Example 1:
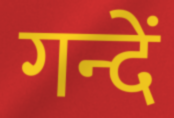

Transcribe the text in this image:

गन्दें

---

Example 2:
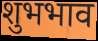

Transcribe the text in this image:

शुभभाव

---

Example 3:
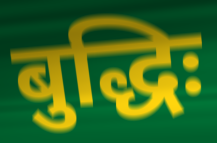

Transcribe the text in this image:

बुद्धिः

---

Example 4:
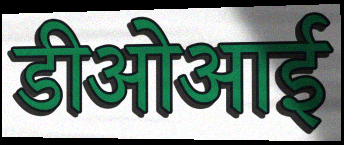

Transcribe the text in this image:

डीओआई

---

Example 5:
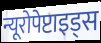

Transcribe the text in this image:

न्यूरोपेप्टाइड्स